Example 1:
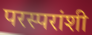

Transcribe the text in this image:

परस्परांशी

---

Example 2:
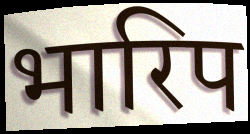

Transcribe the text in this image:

भारिप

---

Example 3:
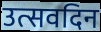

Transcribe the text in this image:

उत्सवदिन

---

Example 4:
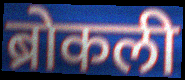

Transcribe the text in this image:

ब्रोकली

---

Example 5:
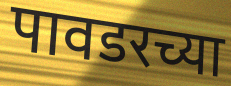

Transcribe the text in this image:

पावडरच्या